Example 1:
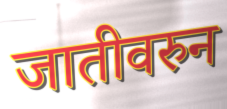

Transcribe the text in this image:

जातीवरुन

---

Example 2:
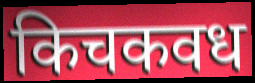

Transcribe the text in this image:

किचकवध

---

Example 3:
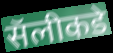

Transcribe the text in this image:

सॅलीकडे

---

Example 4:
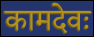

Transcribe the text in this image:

कामदेवः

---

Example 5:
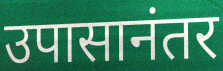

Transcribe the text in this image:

उपासानंतर